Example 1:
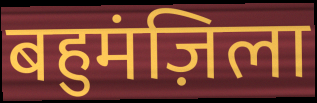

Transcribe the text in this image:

बहुमंज़िला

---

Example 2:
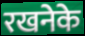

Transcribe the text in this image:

रखनेके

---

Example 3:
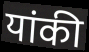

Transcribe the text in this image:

यांकी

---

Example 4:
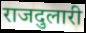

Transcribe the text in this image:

राजदुलारी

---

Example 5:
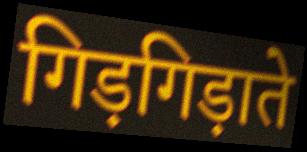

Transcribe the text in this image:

गिड़गिड़ाते